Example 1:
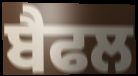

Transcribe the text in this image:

ਬੈਫਲ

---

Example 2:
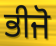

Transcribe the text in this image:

ਭੀਜੋ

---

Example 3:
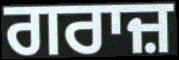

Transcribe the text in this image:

ਗਰਾਜ਼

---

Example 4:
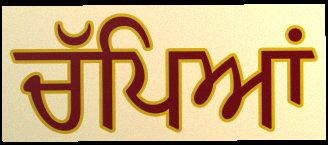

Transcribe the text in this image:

ਚੱਪਿਆਂ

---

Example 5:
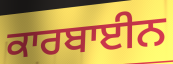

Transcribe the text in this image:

ਕਾਰਬਾਈਨ